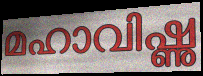
മഹാവിഷ്ണു